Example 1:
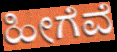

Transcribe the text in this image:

ಹೀಗೆವೆ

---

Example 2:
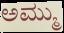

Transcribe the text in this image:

ಅಮ್ಮು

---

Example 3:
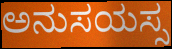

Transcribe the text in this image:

ಅನುಸಯಸ್ಸ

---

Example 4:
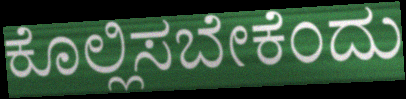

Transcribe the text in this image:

ಕೊಲ್ಲಿಸಬೇಕೆಂದು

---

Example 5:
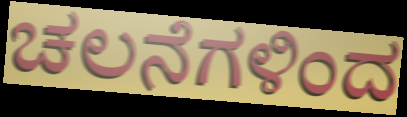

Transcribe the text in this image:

ಚಲನೆಗಳಿಂದ